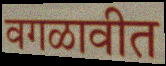
वगळावीत